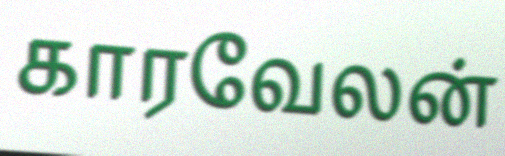
காரவேலன்